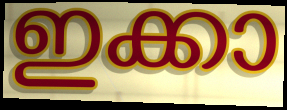
ഇക്കാ